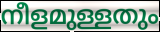
നീളമുള്ളതും